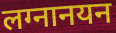
लग्नानयन